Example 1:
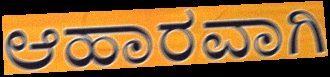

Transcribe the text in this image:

ಆಹಾರವಾಗಿ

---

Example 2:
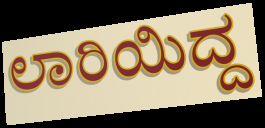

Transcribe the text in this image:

ಲಾರಿಯಿದ್ದ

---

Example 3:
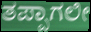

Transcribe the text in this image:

ತಪ್ಪಾಗಲೀ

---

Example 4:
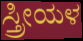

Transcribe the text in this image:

ಸ್ತ್ರೀಯಳ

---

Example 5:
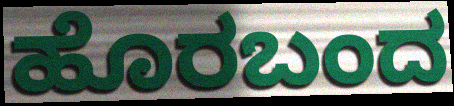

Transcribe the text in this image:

ಹೊರಬಂದ